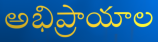
అభిప్రాయాల